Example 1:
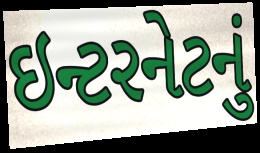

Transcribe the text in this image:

ઇન્ટરનેટનું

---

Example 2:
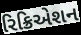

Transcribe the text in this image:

રિક્રિએશન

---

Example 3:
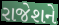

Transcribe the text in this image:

રાજેશને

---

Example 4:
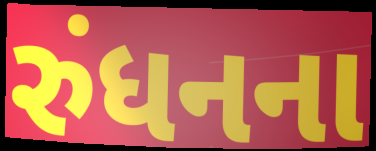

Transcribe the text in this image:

રુંધનના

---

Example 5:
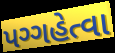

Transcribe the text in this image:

પગ્ગહેત્વા